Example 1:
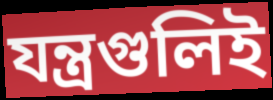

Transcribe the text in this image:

যন্ত্রগুলিই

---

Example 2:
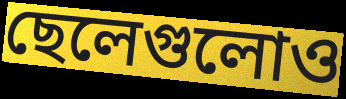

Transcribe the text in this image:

ছেলেগুলোও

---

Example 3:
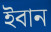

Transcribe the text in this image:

ইবান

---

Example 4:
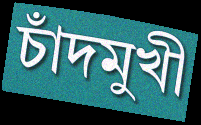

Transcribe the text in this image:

চাঁদমুখী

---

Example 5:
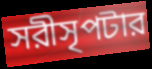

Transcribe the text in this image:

সরীসৃপটার